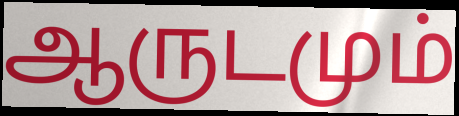
ஆருடமும்